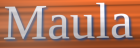
Maula